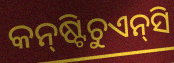
କନ୍‍ଷ୍ଟିଚୁଏନ୍‍ସି